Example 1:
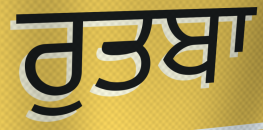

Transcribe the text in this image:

ਰੁਤਬਾ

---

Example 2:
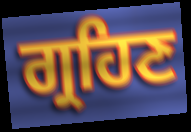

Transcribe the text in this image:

ਗ੍ਰਹਿਣ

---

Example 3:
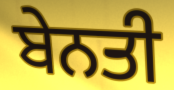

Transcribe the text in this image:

ਬੇਨਤੀ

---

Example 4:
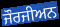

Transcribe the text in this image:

ਜੌਰਜੀਅਨ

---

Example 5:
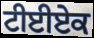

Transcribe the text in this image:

ਟੀਈਏਕ